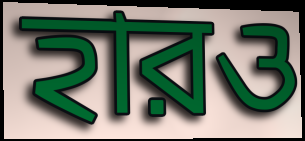
হারও